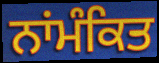
ਨਾਂਮੰਕਿਤ